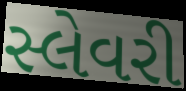
સ્લેવરી